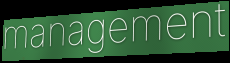
management